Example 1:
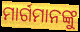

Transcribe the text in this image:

ମାର୍ଗମାନଙ୍କୁ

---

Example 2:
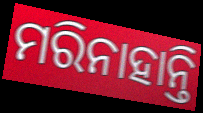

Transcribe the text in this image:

ମରିନାହାନ୍ତି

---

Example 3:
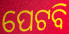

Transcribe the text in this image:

ପେଟବି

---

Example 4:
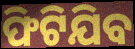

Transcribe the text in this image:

ଫିଟିଯିବ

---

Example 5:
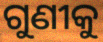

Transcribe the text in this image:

ଗୁଣୀକୁ